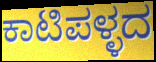
ಕಾಟಿಪಳ್ಳದ